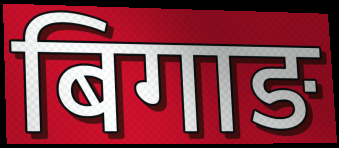
बिगाङ